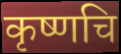
कृष्णचि